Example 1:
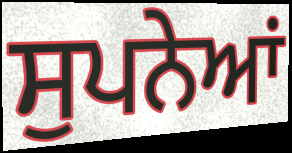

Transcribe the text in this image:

ਸੁਪਨੇਆਂ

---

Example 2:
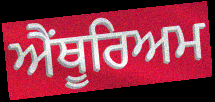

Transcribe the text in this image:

ਐਂਥੂਰਿਅਮ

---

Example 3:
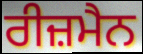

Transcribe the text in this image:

ਰੀਜ਼ਮੈਨ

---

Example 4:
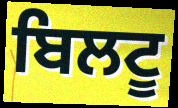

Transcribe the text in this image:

ਬਿਲਟੂ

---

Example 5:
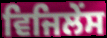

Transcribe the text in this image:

ਵਿਜਿਲੇਂਸ